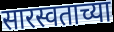
सारस्वताच्या